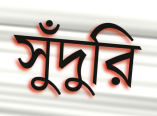
সুঁদুরি